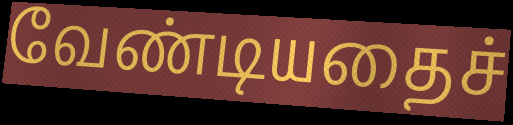
வேண்டியதைச்